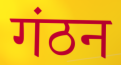
गंठन